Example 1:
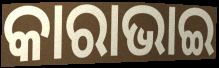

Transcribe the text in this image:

କାରାଭାଇ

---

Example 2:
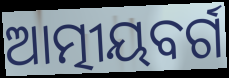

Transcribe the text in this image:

ଆତ୍ମୀୟବର୍ଗ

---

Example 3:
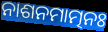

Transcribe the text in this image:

ନାଶନମାତ୍ମନଃ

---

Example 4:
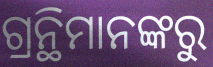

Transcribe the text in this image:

ଗ୍ରନ୍ଥିମାନଙ୍କରୁ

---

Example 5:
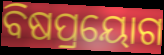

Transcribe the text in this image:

ବିଷପ୍ରୟୋଗ